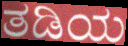
ತಡಿಯ